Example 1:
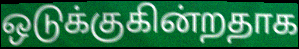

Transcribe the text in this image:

ஒடுக்குகின்றதாக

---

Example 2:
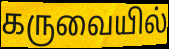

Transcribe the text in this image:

கருவையில்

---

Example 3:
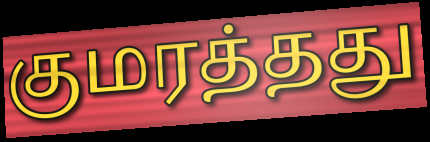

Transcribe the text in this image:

குமரத்தது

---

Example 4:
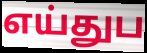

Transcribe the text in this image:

எய்துப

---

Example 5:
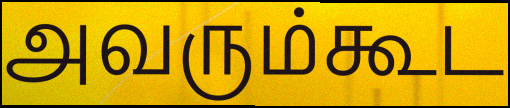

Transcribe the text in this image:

அவரும்கூட